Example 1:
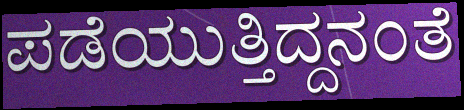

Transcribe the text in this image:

ಪಡೆಯುತ್ತಿದ್ದನಂತೆ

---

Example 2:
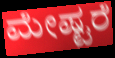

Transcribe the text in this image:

ಮೇಷ್ಟರೆ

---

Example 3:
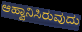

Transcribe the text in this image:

ಆಹ್ವಾನಿಸಿರುವುದು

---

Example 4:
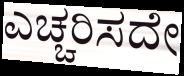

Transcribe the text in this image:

ಎಚ್ಚರಿಸದೇ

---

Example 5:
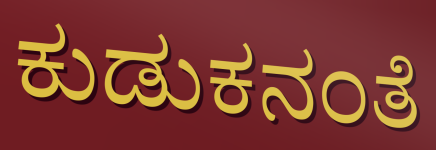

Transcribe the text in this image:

ಕುಡುಕನಂತೆ